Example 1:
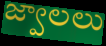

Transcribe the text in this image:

జ్వాలలు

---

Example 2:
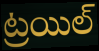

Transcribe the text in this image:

ట్రయిల్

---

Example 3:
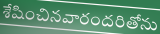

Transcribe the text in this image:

శేషించినవారందరితోను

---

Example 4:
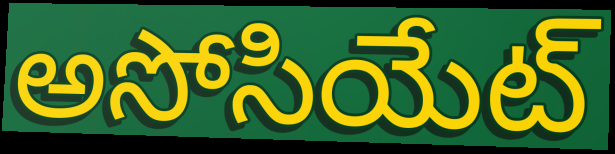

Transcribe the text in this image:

అసోసియేట్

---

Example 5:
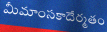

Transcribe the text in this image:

మీమాంసకాదేర్మతం